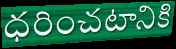
ధరించటానికి